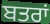
ਬਤਰਾਂ